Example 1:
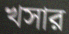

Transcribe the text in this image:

খসার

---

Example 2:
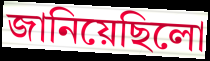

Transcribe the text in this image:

জানিয়েছিলো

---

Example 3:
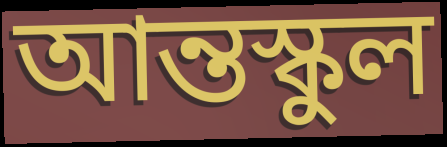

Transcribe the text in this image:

আন্তস্কুল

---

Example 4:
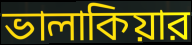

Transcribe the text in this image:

ভালাকিয়ার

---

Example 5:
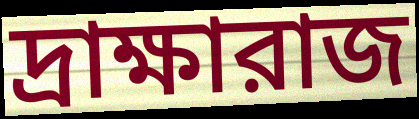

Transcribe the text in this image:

দ্রাক্ষারাজ